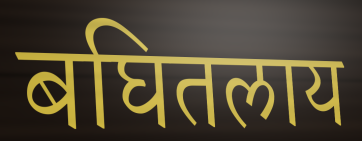
बघितलाय